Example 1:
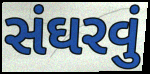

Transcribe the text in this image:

સંઘરવું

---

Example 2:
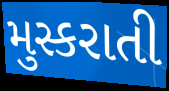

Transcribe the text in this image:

મુસ્કરાતી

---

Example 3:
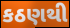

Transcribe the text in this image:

કઠણથી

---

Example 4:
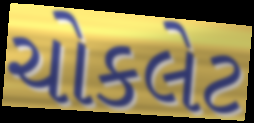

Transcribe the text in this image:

ચોકલેટ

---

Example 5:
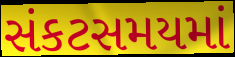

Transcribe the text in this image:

સંકટસમયમાં